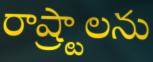
రాష్ర్టాలను